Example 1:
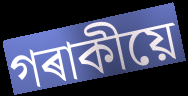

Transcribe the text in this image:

গৰাকীয়ে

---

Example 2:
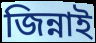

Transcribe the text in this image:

জিন্নাই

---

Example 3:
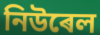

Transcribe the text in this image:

নিউৰেল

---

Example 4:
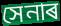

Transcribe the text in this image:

সেনাৰ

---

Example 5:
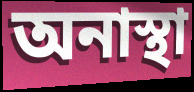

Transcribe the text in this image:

অনাস্থা